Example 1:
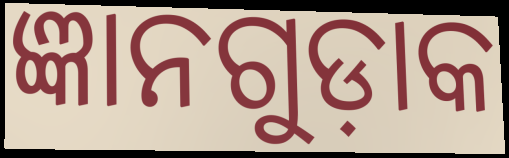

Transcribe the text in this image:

ଜ୍ଞାନଗୁଡ଼ାକ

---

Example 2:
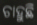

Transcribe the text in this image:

ଚାହୁଛି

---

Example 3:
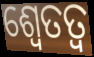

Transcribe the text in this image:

ଶ୍ୱେତତ୍ଵ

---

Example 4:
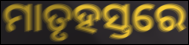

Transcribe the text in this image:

ମାତୃହସ୍ତରେ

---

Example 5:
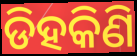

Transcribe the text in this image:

ଡିହକିଣି